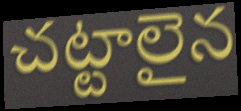
చట్టాలైన